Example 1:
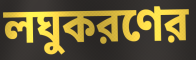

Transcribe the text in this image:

লঘুকরণের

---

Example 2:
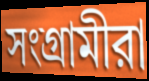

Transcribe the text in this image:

সংগ্রামীরা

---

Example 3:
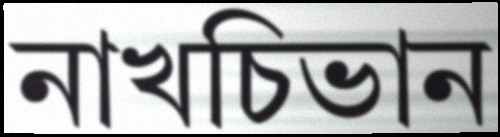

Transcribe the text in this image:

নাখচিভান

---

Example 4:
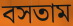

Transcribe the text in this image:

বসতাম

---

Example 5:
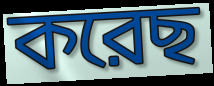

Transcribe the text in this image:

করেছ